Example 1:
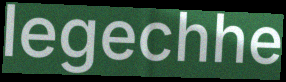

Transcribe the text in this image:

legechhe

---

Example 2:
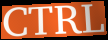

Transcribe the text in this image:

CTRL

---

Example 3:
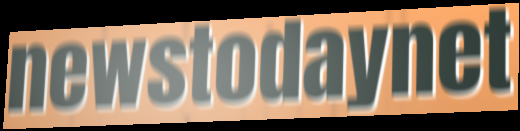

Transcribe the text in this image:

newstodaynet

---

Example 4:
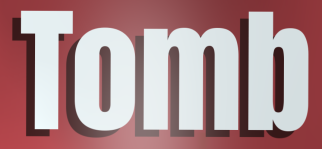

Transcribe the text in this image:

Tomb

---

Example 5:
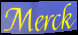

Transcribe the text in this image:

Merck